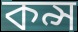
কন্স